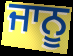
ਜਾਨੂ